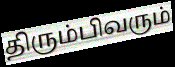
திரும்பிவரும்